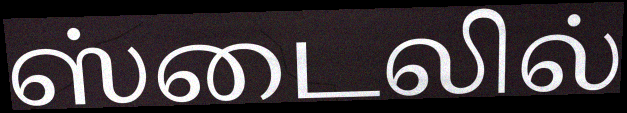
ஸ்டைலில்